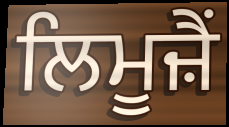
ਲਿਮੂਜ਼ੈਂ